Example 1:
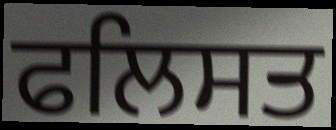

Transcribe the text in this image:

ਫਲਿਸਤ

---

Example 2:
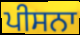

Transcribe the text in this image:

ਪੀਸਨਾ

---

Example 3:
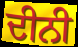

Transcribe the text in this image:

ਦੀਨੀ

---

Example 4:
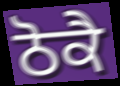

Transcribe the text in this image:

ਠੋਕੈ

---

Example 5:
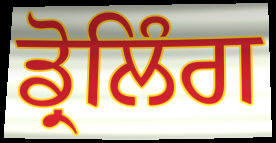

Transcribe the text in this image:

ਡ੍ਰੋਲਿੰਗ